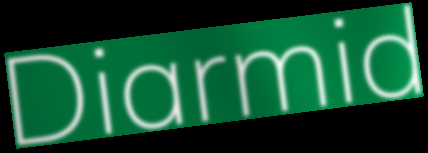
Diarmid